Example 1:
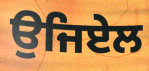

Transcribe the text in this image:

ਉਜਿਏਲ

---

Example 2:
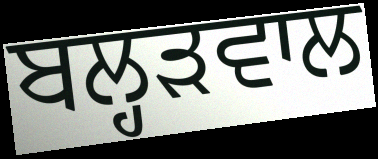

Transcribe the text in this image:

ਬਲ੍ਹੜਵਾਲ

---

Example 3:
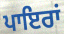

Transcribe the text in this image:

ਪਾਇਰਾਂ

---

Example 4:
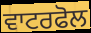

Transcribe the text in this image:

ਵਾਟਰਫੋਲ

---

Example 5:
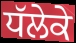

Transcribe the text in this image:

ਧੱਲੇਕੇ